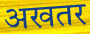
अखतर